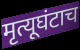
मृत्यूघंटाच